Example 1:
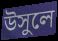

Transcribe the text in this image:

উসুলে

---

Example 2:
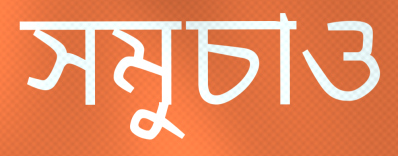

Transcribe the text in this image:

সমুচাও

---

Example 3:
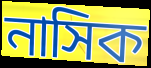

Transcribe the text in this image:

নাসিক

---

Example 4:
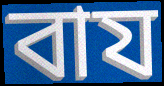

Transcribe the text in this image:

বায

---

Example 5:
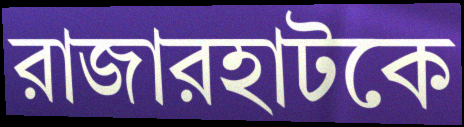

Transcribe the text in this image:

রাজারহাটকে